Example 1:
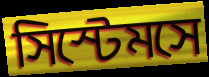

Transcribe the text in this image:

সিস্টেমসে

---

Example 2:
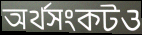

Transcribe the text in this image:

অর্থসংকটও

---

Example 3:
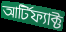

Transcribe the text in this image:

আর্টিফ্যাক্ট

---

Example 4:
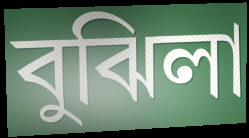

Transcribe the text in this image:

বুঝিলা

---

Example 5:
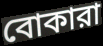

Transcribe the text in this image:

বোকারা